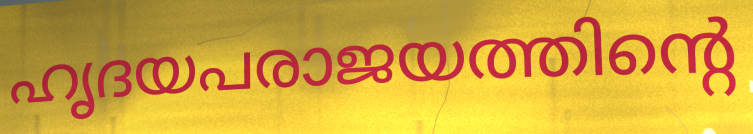
ഹൃദയപരാജയത്തിന്റെ